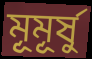
মূমূর্ষু